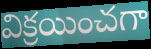
విక్రయించగా